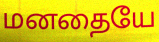
மனதையே